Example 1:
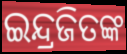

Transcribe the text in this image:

ଇନ୍ଦ୍ରଜିତଙ୍କ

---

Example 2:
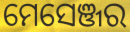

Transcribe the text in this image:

ମେସେଞ୍ଜର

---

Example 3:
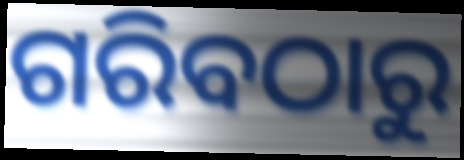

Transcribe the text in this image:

ଗରିବଠାରୁ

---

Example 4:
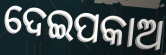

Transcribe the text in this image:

ଦେଇପକାଅ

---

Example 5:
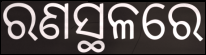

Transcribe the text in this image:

ରଣସ୍ଥଳରେ